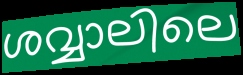
ശവ്വാലിലെ